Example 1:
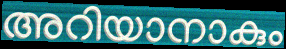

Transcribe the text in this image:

അറിയാനാകും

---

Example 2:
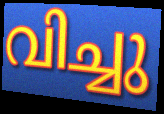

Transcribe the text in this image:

വിച്ചു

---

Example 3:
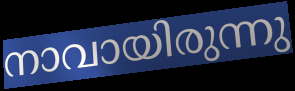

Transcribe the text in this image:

നാവായിരുന്നു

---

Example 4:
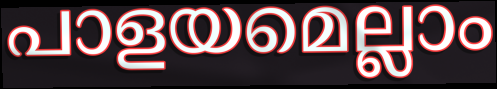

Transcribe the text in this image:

പാളയമെല്ലാം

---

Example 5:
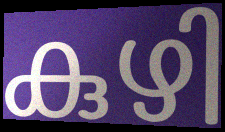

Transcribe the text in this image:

കുഴി